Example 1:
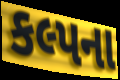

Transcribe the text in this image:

કલ્પના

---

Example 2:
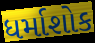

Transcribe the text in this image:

ધર્માશોક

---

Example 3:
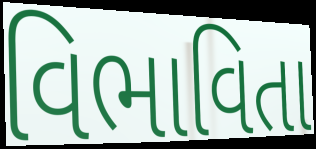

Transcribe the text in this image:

વિભાવિતા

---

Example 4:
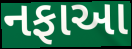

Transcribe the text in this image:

નફાઆ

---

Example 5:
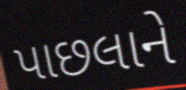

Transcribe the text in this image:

પાછલાને